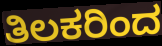
ತಿಲಕರಿಂದ